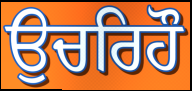
ਉਚਰਿਹੌ